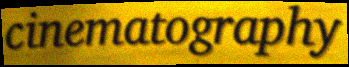
cinematography